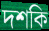
দশকি